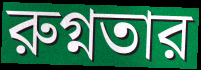
রুগ্নতার